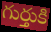
గుర్తుకి